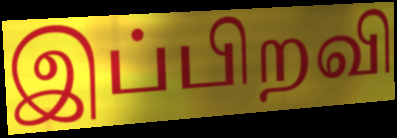
இப்பிறவி